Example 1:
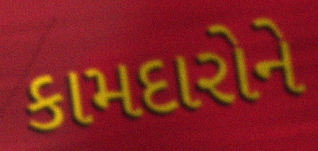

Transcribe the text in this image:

કામદારોને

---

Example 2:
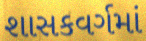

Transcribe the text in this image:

શાસકવર્ગમાં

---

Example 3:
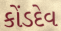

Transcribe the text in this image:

કોંડદેવ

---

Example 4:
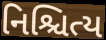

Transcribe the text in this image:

નિશ્ચિત્ય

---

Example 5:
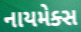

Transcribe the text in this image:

નાયમેક્સ